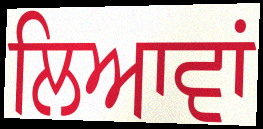
ਲਿਆਵਾਂ